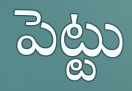
పెట్టు